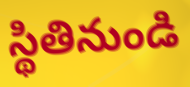
స్థితినుండి